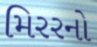
મિરરનો